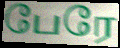
பேரே